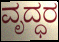
ವೃದ್ಧರ